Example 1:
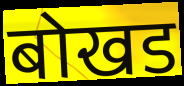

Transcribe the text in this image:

बोखड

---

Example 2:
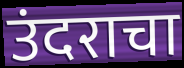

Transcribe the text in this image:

उंदराचा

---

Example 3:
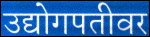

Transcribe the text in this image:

उद्योगपतीवर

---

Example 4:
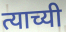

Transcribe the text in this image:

त्याच्यी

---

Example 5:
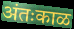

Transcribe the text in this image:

अंतःकाळ